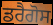
ਡਰੈਗੋਸ